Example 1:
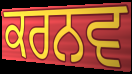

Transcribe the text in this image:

ਕਰਨਵ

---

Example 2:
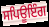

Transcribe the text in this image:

ਸਪਿਊਇੰਗ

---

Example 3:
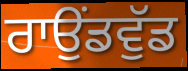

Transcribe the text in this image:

ਰਾਉਂਡਵੁੱਡ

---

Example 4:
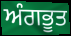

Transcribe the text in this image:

ਅੰਗਭੂਤ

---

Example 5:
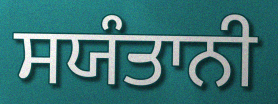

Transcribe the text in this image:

ਸਯੰਤਾਨੀ